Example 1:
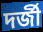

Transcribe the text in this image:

দৰ্জী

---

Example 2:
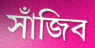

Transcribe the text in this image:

সাঁজিব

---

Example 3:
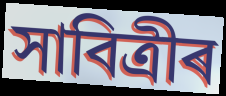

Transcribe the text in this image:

সাবিত্ৰীৰ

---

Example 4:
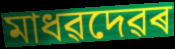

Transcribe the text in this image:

মাধৱদেৱৰ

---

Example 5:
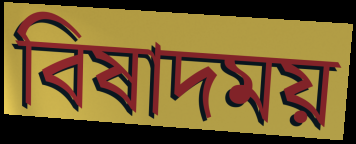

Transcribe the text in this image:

বিষাদময়